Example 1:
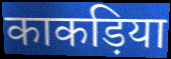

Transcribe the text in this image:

काकड़िया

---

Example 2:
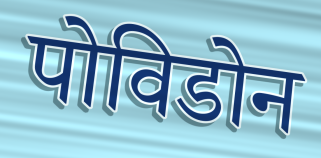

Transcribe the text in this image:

पोविडोन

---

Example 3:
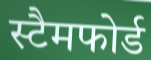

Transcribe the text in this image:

स्टैमफोर्ड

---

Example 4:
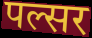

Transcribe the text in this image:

पल्सर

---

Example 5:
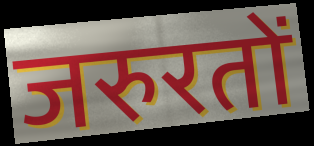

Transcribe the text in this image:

जरुरतों